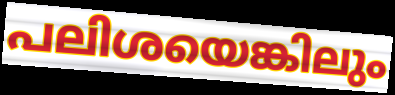
പലിശയെങ്കിലും